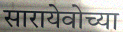
सारायेवोच्या